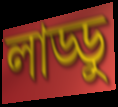
লাড্ডু